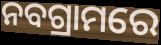
ନବଗ୍ରାମରେ